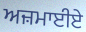
ਅਜ਼ਮਾਈਏ